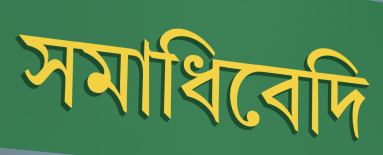
সমাধিবেদি